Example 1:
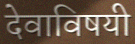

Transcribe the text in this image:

देवाविषयी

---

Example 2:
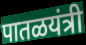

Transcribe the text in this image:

पातळयंत्री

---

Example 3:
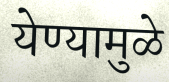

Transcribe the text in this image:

येण्यामुळे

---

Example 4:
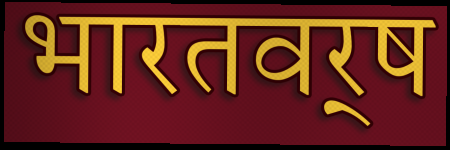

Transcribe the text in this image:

भारतवर्ष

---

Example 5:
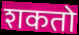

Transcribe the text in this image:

शकतो